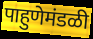
पाहुणेमंडळी